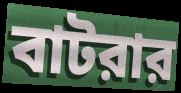
বাটরার